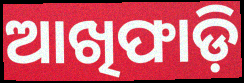
ଆଖିଫାଡ଼ି